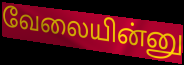
வேலையின்னு